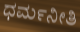
ಧರ್ಮನೀತಿ